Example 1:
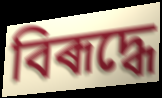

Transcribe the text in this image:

বিৰূদ্ধে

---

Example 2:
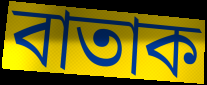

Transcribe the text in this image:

বাতাক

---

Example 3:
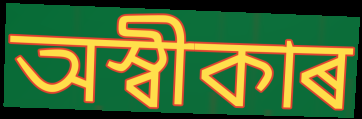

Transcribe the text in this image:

অস্বীকাৰ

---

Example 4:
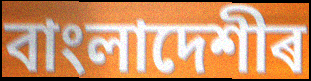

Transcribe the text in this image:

বাংলাদেশীৰ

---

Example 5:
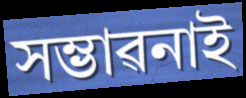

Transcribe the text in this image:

সম্ভাৱনাই